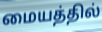
மையத்தில்